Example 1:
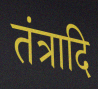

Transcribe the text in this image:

तंत्रादि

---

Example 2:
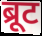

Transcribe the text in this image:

ब्रूट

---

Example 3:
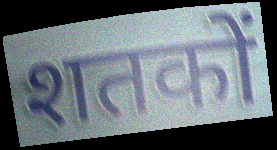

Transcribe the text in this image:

शतकों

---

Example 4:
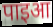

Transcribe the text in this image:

पाइआ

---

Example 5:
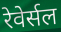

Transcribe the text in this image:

रेवेर्सल